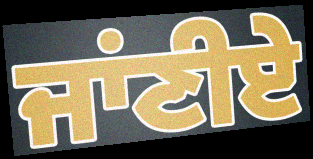
ਜਾਂਣੀਏ